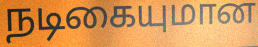
நடிகையுமான